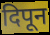
दिपून